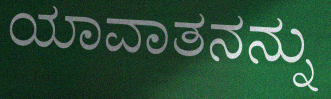
ಯಾವಾತನನ್ನು